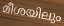
മീശയിലും